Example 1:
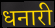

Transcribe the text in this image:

धनारी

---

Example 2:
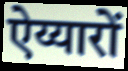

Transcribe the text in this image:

ऐय्यारों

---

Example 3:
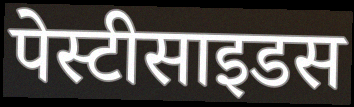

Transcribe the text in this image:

पेस्टीसाइडस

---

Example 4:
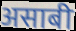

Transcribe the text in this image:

असाबी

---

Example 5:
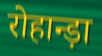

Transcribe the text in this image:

रोहान्ड़ा